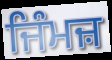
ਜਿੰਮਜ਼